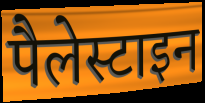
पैलेस्टाइन